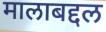
मालाबद्दल